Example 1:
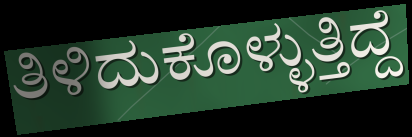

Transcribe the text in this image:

ತಿಳಿದುಕೊಳ್ಳುತ್ತಿದ್ದೆ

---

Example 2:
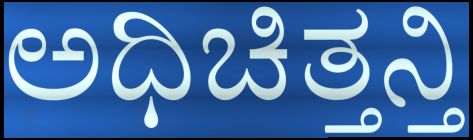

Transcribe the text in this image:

ಅಧಿಚಿತ್ತನ್ತಿ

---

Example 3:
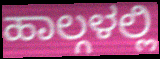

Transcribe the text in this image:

ಹಾಲ್ಗಳಲ್ಲಿ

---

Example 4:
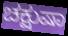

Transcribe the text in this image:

ಚಕ್ಷುಷಾ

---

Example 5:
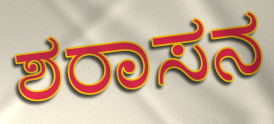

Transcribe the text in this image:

ಶರಾಸನ